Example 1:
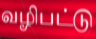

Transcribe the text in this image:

வழிபட்டு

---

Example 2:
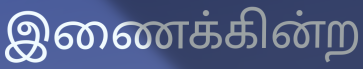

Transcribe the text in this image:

இணைக்கின்ற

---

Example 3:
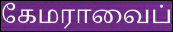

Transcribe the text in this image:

கேமராவைப்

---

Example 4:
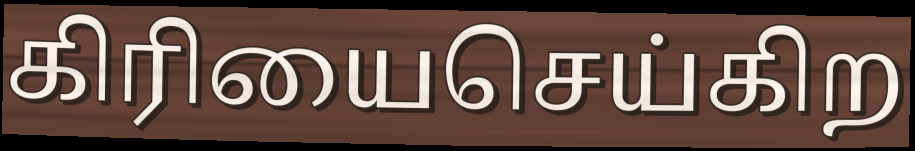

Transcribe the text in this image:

கிரியைசெய்கிற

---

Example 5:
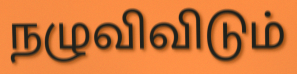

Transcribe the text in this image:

நழுவிவிடும்